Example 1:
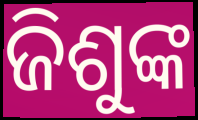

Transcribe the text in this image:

ଜିଶୁଙ୍କ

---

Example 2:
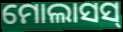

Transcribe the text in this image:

ମୋଲାସସ୍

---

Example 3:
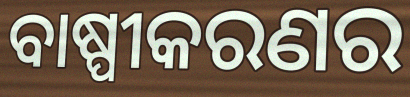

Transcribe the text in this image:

ବାଷ୍ପୀକରଣର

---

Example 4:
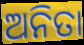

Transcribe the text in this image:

ଅନିତା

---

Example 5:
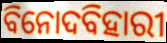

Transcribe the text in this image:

ବିନୋଦବିହାରୀ